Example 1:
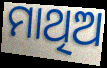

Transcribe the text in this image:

ମାଥିଅ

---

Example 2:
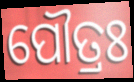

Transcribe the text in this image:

ପୌତ୍ରଃ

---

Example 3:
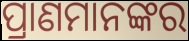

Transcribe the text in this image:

ପ୍ରାଣମାନଙ୍କର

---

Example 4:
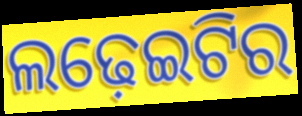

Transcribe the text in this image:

ଲଢ଼େଇଟିର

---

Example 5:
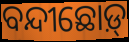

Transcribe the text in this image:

ବନ୍ଦୀଛୋଡ଼୍